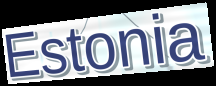
Estonia